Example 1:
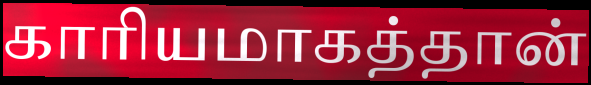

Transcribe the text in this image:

காரியமாகத்தான்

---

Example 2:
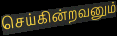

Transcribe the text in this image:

செய்கின்றவனும்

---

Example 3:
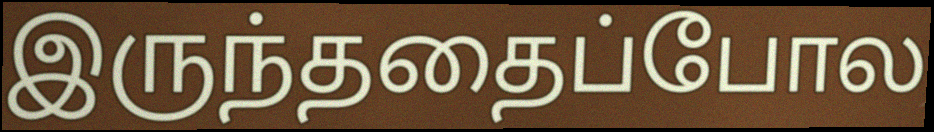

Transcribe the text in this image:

இருந்ததைப்போல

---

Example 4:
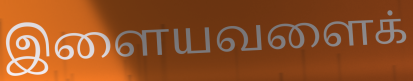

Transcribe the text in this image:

இளையவளைக்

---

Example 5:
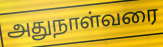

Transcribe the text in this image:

அதுநாள்வரை